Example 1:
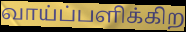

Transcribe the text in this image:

வாய்ப்பளிக்கிற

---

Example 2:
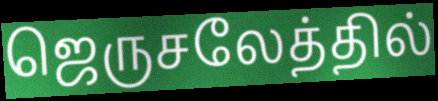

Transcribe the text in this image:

ஜெருசலேத்தில்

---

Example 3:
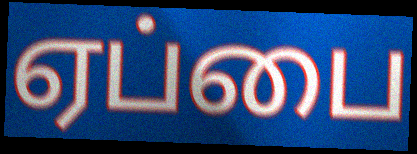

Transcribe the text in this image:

ஏப்பை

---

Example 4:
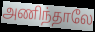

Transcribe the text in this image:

அணிந்தாலே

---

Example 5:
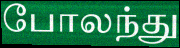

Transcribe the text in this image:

போலந்து